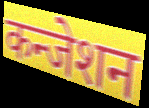
कन्जेशन